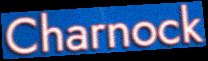
Charnock